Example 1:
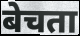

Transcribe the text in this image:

बेचता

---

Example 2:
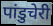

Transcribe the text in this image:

पांडुचेरी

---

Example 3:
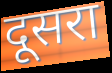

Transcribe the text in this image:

दूसरा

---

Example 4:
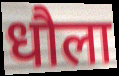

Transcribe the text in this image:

धौला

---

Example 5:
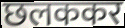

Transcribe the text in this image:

छलककर